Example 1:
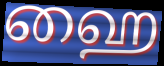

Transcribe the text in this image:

ஹை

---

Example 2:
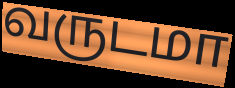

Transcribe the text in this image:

வருடமா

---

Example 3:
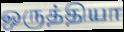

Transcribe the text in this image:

ஒருத்தியா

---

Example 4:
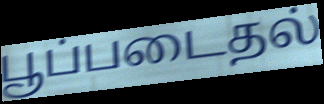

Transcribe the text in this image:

பூப்படைதல்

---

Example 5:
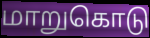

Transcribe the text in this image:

மாறுகொடு